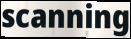
scanning